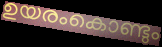
ഉയരംകൊണ്ടും